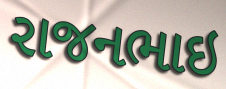
રાજનભાઇ